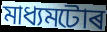
মাধ্যমটোৰ